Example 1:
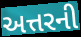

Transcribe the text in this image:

અત્તરની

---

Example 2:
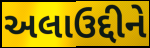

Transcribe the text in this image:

અલાઉદ્દીને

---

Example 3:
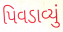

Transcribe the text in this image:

પિવડાવ્યું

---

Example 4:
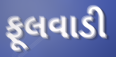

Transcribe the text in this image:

ફૂલવાડી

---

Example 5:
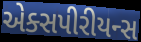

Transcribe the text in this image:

એક્સપીરીયન્સ